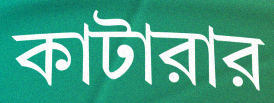
কাটারার